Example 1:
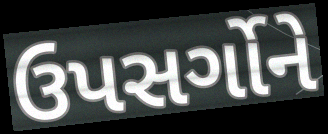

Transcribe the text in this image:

ઉપસર્ગોને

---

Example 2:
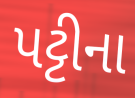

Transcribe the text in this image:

પટ્ટીના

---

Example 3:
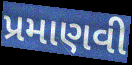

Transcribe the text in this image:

પ્રમાણવી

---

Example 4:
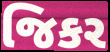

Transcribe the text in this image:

જિકર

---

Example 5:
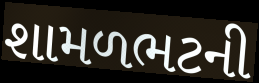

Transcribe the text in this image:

શામળભટની